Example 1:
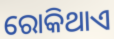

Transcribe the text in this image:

ରୋକିଥାଏ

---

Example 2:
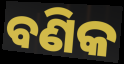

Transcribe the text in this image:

ବଣିକ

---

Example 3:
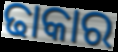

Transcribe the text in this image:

ଢାକାର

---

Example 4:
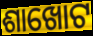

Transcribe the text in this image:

ଶାଖୋଟ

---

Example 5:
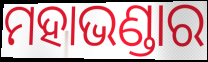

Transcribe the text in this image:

ମହାଭଣ୍ଡାର